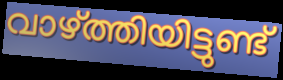
വാഴ്ത്തിയിട്ടുണ്ട്